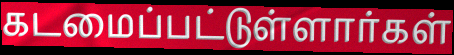
கடமைப்பட்டுள்ளார்கள்